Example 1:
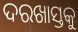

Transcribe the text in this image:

ଦରଖାସ୍ତକୁ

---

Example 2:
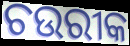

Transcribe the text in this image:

ଚଉରୀକ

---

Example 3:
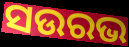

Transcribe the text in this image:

ସଉରଭ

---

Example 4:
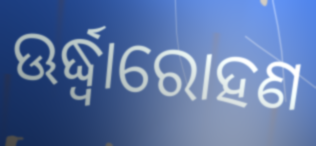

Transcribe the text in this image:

ଊର୍ଦ୍ଧ୍ୱାରୋହଣ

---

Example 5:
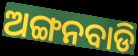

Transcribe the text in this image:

ଅଙ୍ଗନବାଡି